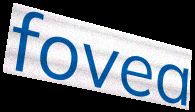
fovea